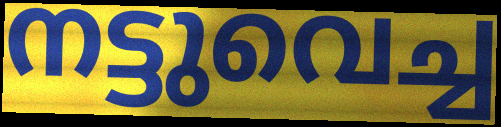
നട്ടുവെച്ച